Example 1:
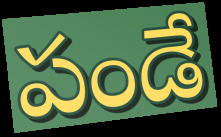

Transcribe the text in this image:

పండే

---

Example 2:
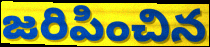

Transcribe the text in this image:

జరిపించిన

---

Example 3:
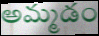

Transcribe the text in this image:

అమ్మడం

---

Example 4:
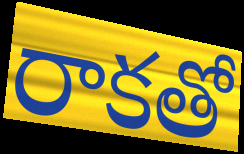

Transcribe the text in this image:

రాకతో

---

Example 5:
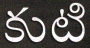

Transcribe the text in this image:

కుటి